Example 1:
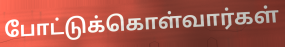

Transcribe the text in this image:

போட்டுக்கொள்வார்கள்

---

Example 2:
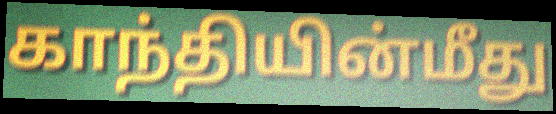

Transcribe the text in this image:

காந்தியின்மீது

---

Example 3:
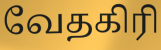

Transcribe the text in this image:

வேதகிரி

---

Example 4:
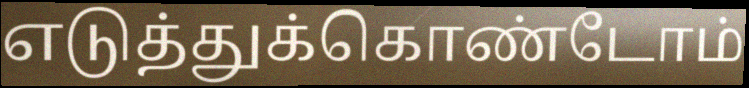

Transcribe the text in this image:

எடுத்துக்கொண்டோம்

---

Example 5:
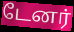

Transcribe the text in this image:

டேனர்